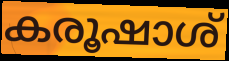
കരൂഷാശ്